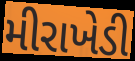
મીરાખેડી